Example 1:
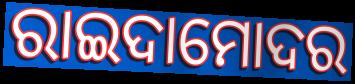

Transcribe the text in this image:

ରାଇଦାମୋଦର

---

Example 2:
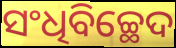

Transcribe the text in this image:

ସଂଧିବିଚ୍ଛେଦ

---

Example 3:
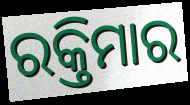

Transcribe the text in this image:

ରକ୍ତିମାର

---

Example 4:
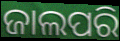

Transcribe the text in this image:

ଜାଲପରି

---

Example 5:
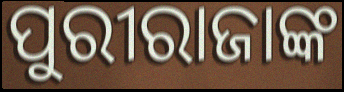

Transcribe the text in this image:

ପୁରୀରାଜାଙ୍କ